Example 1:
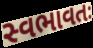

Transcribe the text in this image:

સ્વભાવતઃ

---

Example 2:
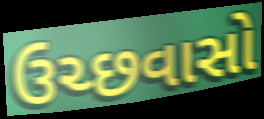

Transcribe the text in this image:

ઉચ્છવાસો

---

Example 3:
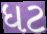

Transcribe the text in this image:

ધટ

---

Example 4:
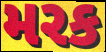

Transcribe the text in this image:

મરક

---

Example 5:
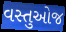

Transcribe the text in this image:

વસ્તુઓજ